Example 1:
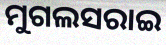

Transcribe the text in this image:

ମୁଗଲସରାଇ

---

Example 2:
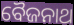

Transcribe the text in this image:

ବୈଜନାଥ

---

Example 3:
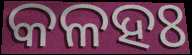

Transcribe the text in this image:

କଳହଃ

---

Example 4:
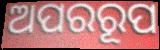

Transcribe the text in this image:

ଅପରରୂପ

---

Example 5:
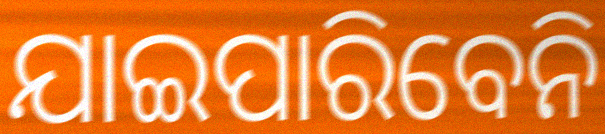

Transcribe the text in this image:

ଯାଇପାରିବେନି